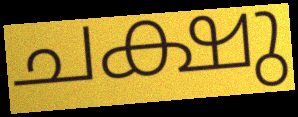
ചക്ഷു